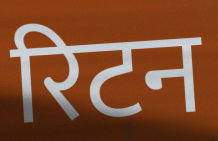
रिटन